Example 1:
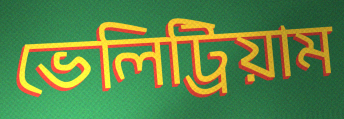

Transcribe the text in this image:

ভেলিট্রিয়াম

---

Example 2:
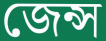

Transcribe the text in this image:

জেন্স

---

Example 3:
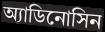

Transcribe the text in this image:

অ্যাডিনোসিন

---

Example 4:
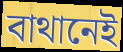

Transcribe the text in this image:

বাথানেই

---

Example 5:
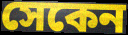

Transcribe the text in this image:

সেকেন